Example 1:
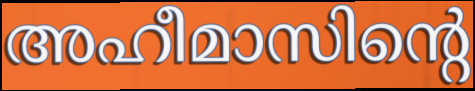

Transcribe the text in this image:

അഹീമാസിന്റെ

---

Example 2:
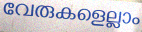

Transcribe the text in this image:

വേരുകളെല്ലാം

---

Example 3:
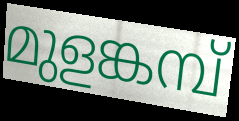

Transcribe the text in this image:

മുളങ്കമ്പ്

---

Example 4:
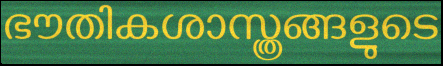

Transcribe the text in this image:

ഭൗതികശാസ്ത്രങ്ങളുടെ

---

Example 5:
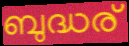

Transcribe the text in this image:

ബുദ്ധര്